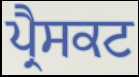
ਪ੍ਰੈਸਕਟ